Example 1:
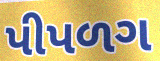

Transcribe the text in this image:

પીપળગ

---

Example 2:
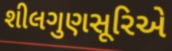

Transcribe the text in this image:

શીલગુણસૂરિએ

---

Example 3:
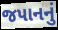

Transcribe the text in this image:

જપાનનું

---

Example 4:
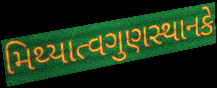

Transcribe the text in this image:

મિથ્યાત્વગુણસ્થાનકે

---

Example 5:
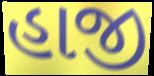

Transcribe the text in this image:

હાજી